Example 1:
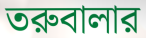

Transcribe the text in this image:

তরুবালার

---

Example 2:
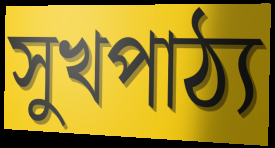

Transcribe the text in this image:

সুখপাঠ্য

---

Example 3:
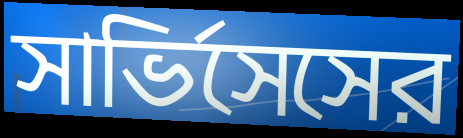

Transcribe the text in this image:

সার্ভিসেসের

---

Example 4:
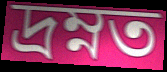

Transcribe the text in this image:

দ্রম্নত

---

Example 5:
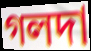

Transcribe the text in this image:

গলদা